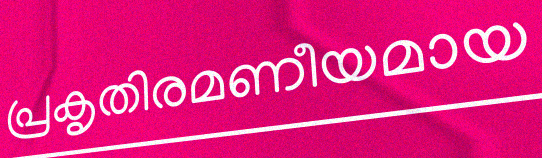
പ്രകൃതിരമണീയമായ